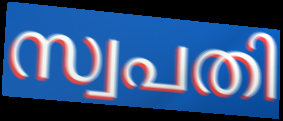
സ്വപതി